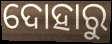
ଦୋହାରୁ